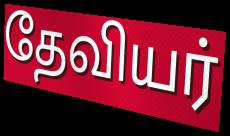
தேவியர்